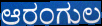
ಆರಂಗುಲ